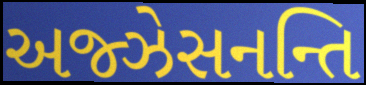
અજ્ઝેસનન્તિ